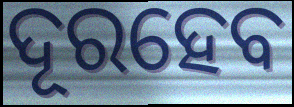
ଦୂରହେବ